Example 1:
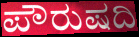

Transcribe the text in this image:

ಪೌರುಷದಿ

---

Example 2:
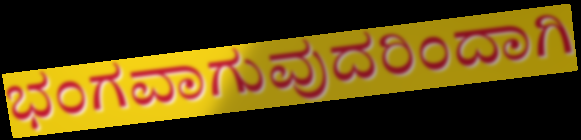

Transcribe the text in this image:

ಭಂಗವಾಗುವುದರಿಂದಾಗಿ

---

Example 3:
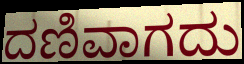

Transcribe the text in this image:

ದಣಿವಾಗದು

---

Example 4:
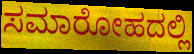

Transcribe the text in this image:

ಸಮಾರೋಹದಲ್ಲಿ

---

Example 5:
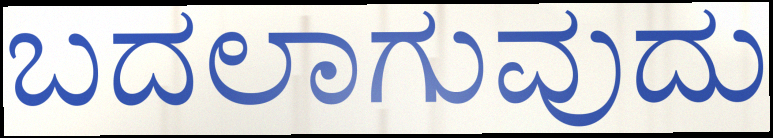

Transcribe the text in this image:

ಬದಲಾಗುವುದು